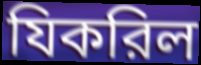
যিকরিল